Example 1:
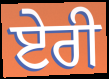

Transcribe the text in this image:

ਏਰੀ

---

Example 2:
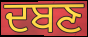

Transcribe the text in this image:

ਦਬਣ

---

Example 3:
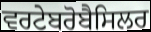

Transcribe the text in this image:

ਵਰਟੇਬਰੋਬੈਸਿਲਰ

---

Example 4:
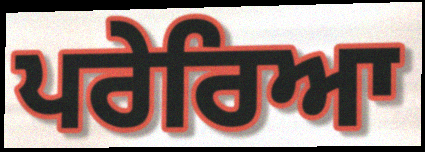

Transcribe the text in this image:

ਪਰੇਰਿਆ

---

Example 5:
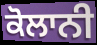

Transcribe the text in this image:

ਕੋਲਾਨੀ